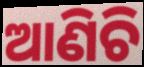
ଆଣିଚି